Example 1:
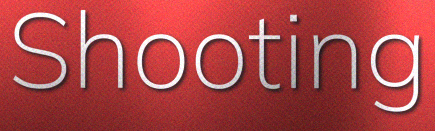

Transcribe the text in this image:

Shooting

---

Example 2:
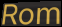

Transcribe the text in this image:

Rom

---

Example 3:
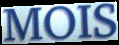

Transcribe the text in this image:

MOIS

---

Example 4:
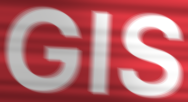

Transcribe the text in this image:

GIS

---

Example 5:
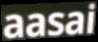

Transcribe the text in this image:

aasai